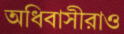
অধিবাসীরাও